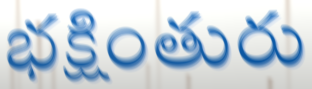
భక్షింతురు